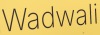
Wadwali